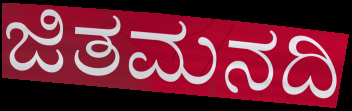
ಜಿತಮನದಿ